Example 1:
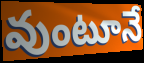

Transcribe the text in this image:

వుంటూనే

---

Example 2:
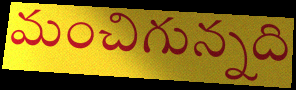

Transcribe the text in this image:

మంచిగున్నది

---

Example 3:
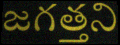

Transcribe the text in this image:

జగత్తని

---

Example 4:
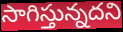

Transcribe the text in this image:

సాగిస్తున్నదని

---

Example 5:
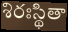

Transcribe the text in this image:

శిరఃస్థితా